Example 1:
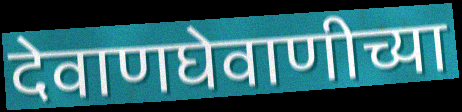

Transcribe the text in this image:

देवाणघेवाणीच्या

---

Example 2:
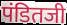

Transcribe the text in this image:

पंडितजी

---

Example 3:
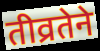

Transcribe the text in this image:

तीव्रतेने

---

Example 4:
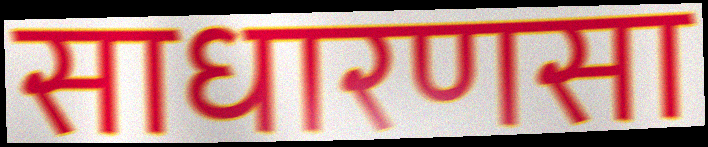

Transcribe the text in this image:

साधारणसा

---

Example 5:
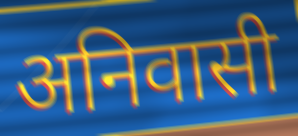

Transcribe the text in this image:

अनिवासी